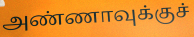
அண்ணாவுக்குச்